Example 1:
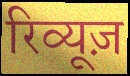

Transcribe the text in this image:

रिव्यूज़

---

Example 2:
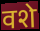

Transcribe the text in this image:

वशे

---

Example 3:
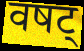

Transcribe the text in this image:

वषट्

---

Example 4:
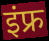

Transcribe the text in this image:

इंफ्र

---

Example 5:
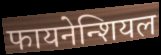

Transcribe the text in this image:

फायनेन्शियल